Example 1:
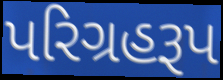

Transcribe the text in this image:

પરિગ્રહરૂપ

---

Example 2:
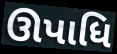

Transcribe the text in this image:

ઊપાધિ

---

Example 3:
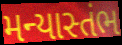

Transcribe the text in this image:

મન્યાસ્તંભ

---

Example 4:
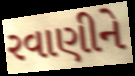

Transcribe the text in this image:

રવાણીને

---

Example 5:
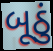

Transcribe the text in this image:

બૂઠું